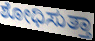
ಶೋಧಿಸುತ್ತಾ